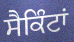
ਸੈਕਿੰਟਾਂ